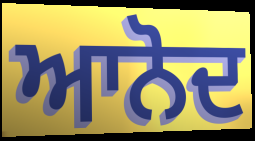
ਆਨੋਦ